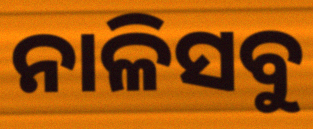
ନାଳିସବୁ